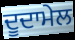
ਦੂਦਾਮੇਲ